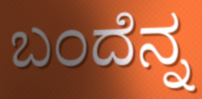
ಬಂದೆನ್ನ